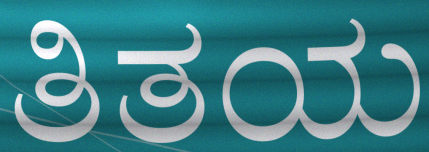
ತಿತಯ